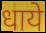
धाये